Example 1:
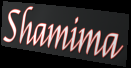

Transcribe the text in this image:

Shamima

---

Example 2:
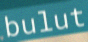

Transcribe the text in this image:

bulut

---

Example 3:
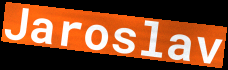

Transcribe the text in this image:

Jaroslav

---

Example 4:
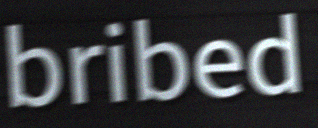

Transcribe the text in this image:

bribed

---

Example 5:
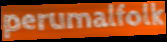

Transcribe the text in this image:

perumalfolk